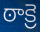
ఠాక్రె